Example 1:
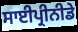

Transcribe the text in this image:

ਸਾਈਪ੍ਰੀਨੀਡੇ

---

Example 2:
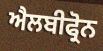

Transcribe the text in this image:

ਐਲਬੀਫ੍ਰੋਨ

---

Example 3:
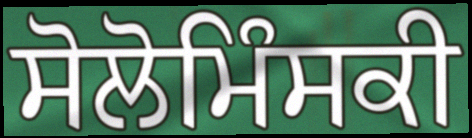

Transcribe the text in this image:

ਸੋਲੋਮਿੰਸਕੀ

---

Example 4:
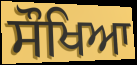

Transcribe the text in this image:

ਸੌਖਿਆ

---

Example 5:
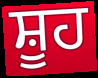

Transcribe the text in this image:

ਸ਼ੂਹ